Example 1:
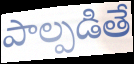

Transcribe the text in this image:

పాల్పడితే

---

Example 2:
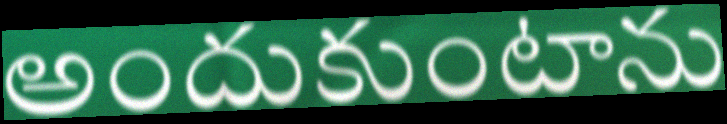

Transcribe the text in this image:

అందుకుంటాను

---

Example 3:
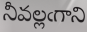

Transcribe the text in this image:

నీవల్లఁగాని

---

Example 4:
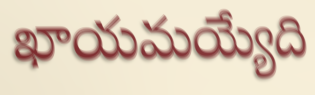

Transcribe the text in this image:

ఖాయమయ్యేది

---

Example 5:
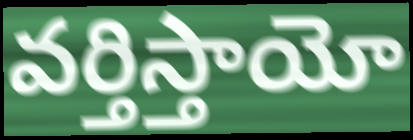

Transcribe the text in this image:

వర్తిస్తాయో